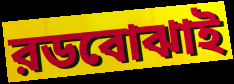
রডবোঝাই